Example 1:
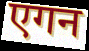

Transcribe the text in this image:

एगन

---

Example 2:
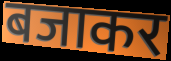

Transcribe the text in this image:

बजाकर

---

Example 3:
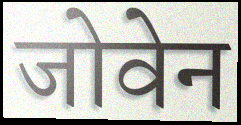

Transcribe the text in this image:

जोवेन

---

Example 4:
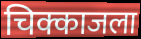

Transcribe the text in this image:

चिक्काजला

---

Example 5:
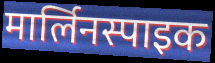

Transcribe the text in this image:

मार्लिनस्पाइक